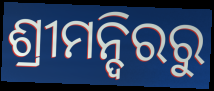
ଶ୍ରୀମନ୍ଦିରରୁ